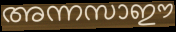
അന്നസാഈ